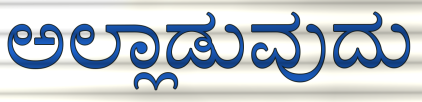
ಅಲ್ಲಾಡುವುದು